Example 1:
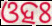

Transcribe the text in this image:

ଓହଃ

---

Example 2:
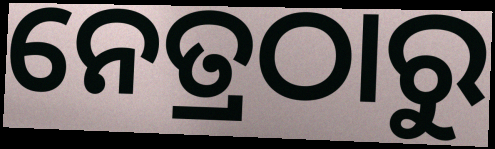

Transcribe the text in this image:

ନେତ୍ରଠାରୁ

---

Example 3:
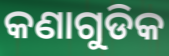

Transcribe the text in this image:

କଣାଗୁଡିକ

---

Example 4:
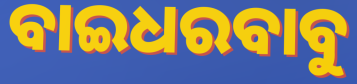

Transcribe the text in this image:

ବାଇଧରବାବୁ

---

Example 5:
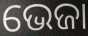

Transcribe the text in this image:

ଭେଜା